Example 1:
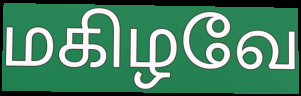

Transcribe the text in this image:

மகிழவே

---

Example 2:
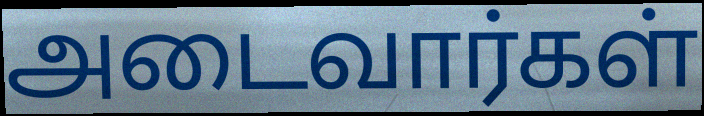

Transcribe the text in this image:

அடைவார்கள்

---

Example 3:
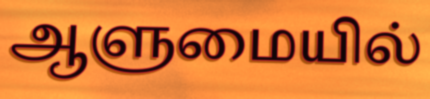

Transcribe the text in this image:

ஆளுமையில்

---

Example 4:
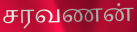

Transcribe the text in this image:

சரவணன்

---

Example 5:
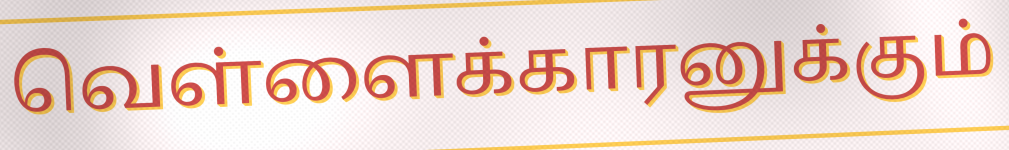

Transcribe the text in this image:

வெள்ளைக்காரனுக்கும்